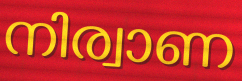
നിര്വാണ